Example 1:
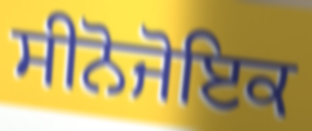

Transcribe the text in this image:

ਸੀਨੋਜੋਇਕ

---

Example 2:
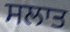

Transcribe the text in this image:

ਸਲਾਤ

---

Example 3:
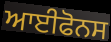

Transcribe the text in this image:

ਆਈਫੋਨਸ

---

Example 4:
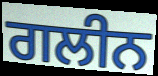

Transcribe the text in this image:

ਗਲੀਨ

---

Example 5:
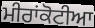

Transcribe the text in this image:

ਮੀਰਾਂਕੋਟੀਆ